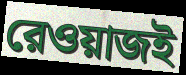
রেওয়াজই